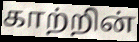
காற்றின்